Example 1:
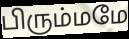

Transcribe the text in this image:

பிரும்மமே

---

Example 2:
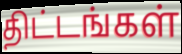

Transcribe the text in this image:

திட்டங்கள்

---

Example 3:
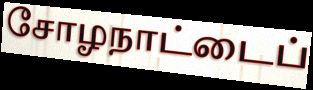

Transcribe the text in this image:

சோழநாட்டைப்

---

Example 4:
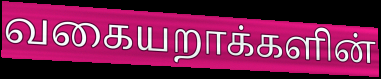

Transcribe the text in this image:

வகையறாக்களின்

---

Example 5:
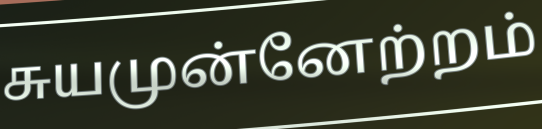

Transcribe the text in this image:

சுயமுன்னேற்றம்